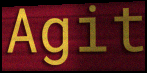
Agit